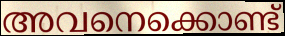
അവനെക്കൊണ്ട്